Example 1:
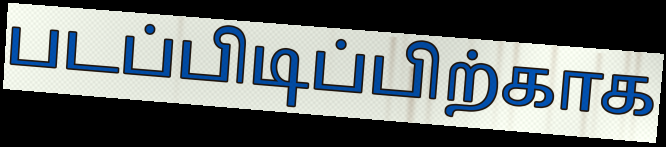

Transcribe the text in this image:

படப்பிடிப்பிற்காக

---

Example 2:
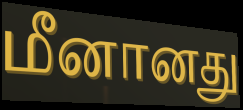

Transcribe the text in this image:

மீனானது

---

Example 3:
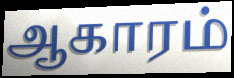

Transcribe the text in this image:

ஆகாரம்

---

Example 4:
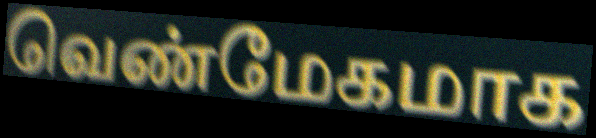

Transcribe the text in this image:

வெண்மேகமாக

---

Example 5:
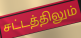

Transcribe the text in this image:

சட்டத்திலும்